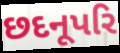
છદનૂપરિ